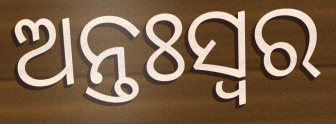
ଅନ୍ତଃସ୍ଵର